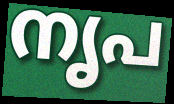
നൃപ